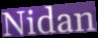
Nidan